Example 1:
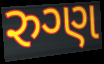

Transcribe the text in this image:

રુગ્ણ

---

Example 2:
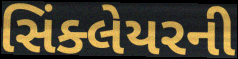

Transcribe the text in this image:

સિંક્લેયરની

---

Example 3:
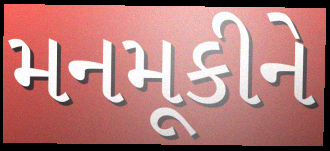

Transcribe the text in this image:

મનમૂકીને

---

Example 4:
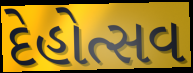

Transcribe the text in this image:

દેહોત્સવ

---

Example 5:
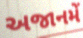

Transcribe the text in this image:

અજાનમેં